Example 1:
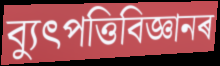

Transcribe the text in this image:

ব্যুৎপত্তিবিজ্ঞানৰ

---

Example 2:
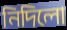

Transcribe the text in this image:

নিদিলো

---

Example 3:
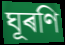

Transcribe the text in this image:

ঘূৰণি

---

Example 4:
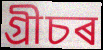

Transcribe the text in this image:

গ্ৰীচৰ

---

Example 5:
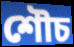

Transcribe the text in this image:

শৌচ